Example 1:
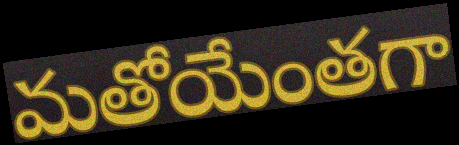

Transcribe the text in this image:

మతోయేంతగా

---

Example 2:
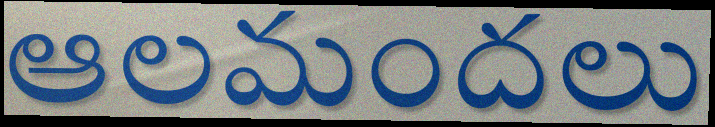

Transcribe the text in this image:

ఆలమందలు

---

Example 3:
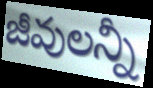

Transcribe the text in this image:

జీవులన్నీ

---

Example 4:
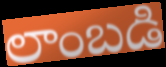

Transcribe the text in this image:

లాంబడి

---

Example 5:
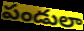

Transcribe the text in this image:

పండులా